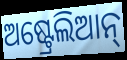
ଅଷ୍ଟ୍ରେଲିଆନ୍